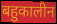
बहुकालीन